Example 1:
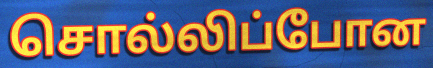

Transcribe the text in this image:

சொல்லிப்போன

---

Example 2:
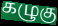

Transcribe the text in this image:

கழுகு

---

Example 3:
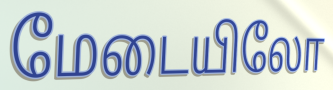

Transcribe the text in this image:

மேடையிலோ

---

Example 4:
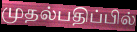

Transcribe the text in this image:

முதல்பதிப்பில்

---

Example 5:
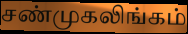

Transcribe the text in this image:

சண்முகலிங்கம்